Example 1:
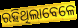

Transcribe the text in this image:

ରହିଥିଲାବେଳେ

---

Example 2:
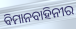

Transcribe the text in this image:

ବିମାନବାହିନୀର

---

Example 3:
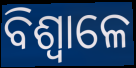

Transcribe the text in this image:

ବିଶ୍ଵାଳେ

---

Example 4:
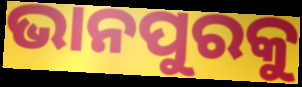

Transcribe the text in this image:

ଭାନପୁରକୁ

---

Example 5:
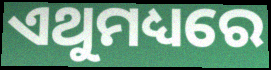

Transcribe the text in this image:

ଏଥୁମଧ୍ୟରେ